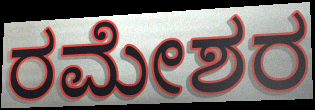
ರಮೇಶರ